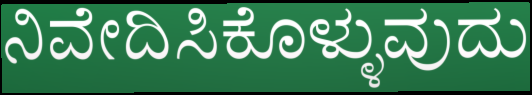
ನಿವೇದಿಸಿಕೊಳ್ಳುವುದು